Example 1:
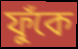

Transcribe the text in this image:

ফুঁকে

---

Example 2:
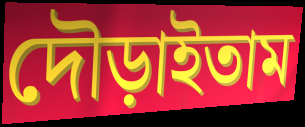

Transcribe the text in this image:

দৌড়াইতাম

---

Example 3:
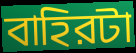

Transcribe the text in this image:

বাহিরটা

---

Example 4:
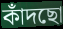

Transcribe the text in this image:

কাঁদছো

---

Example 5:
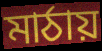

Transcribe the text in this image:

মাঠায়